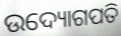
ଉଦ୍ୟୋଗପତି